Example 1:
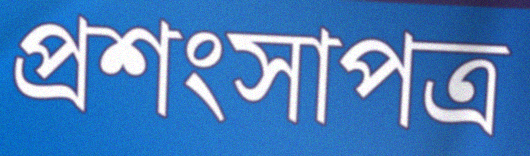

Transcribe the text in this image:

প্রশংসাপত্র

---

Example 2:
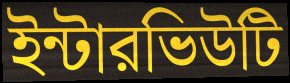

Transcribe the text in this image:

ইন্টারভিউটি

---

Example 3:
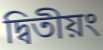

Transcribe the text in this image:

দ্বিতীয়ং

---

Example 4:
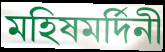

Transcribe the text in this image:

মহিষমর্দিনী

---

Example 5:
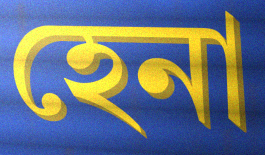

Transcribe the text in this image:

হেনা